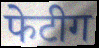
फेटीग